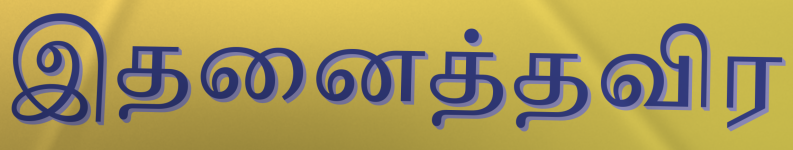
இதனைத்தவிர